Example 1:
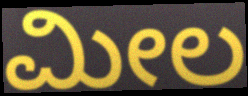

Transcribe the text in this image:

ಮೀಲ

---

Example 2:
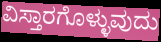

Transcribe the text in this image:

ವಿಸ್ತಾರಗೊಳ್ಳುವುದು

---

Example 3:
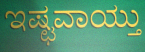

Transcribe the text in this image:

ಇಷ್ಟವಾಯ್ತು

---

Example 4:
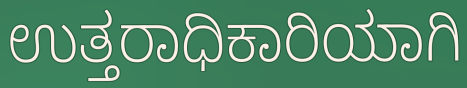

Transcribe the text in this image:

ಉತ್ತರಾಧಿಕಾರಿಯಾಗಿ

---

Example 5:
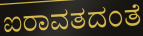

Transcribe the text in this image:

ಐರಾವತದಂತೆ